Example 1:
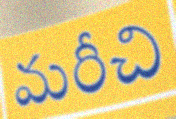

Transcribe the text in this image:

మరీచి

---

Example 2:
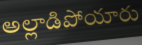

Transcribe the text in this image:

అల్లాడిపోయారు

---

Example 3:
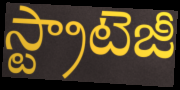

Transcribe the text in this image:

స్ట్రాటెజీ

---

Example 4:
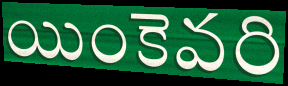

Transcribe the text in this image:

యింకెవరి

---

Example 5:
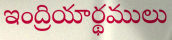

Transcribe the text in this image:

ఇంద్రియార్థములు